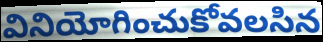
వినియోగించుకోవలసిన